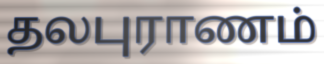
தலபுராணம்